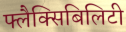
फ्लैक्सिबिलिटी